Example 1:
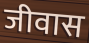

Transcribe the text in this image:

जीवास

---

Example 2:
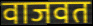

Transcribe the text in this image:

वाजवत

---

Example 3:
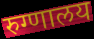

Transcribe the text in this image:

रुग्णालय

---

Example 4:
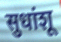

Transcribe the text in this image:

सुधांशू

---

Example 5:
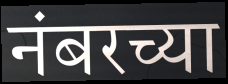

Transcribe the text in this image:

नंबरच्या